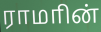
ராமரின்